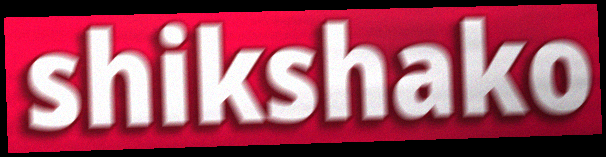
shikshako